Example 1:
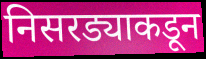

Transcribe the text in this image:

निसरड्याकडून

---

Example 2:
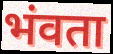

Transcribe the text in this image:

भंवता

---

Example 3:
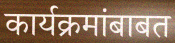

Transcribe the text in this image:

कार्यक्रमांबाबत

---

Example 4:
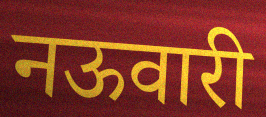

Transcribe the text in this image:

नऊवारी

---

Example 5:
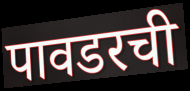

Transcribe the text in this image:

पावडरची